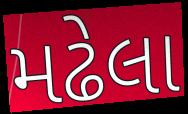
મઢેલા